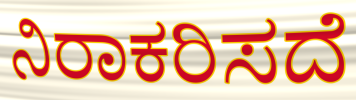
ನಿರಾಕರಿಸದೆ